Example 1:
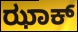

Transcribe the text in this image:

ಝಾಕ್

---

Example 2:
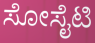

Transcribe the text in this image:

ಸೋಸೈಟಿ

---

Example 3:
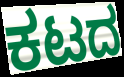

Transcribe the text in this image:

ಕಟದ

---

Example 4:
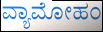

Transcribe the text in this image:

ವ್ಯಾಮೋಹಂ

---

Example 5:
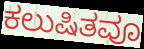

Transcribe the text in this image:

ಕಲುಷಿತವೂ